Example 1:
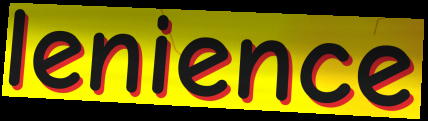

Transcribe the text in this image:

lenience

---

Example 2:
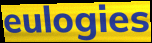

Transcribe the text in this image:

eulogies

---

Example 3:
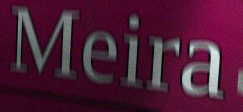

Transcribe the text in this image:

Meira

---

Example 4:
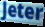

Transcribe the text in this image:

Jeter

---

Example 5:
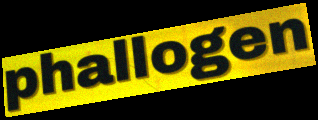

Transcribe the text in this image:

phallogen